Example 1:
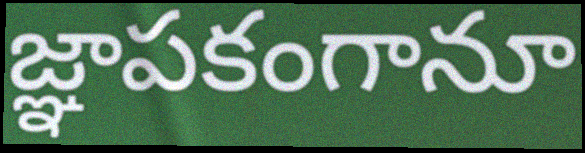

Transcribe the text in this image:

జ్ఞాపకంగానూ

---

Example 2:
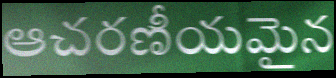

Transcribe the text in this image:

ఆచరణీయమైన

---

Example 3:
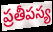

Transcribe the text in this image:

ప్రతీపస్య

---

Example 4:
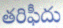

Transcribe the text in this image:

తరిఫీదు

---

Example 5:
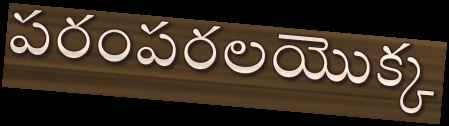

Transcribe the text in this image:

పరంపరలయొక్క